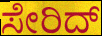
ಸೇರಿದ್